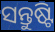
ସନ୍ତୁଷ୍ଟି